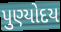
પુણ્યોદય